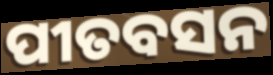
ପୀତବସନ